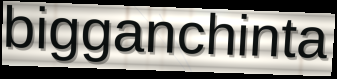
bigganchinta